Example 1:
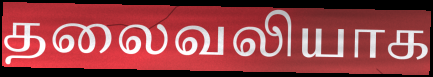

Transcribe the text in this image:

தலைவலியாக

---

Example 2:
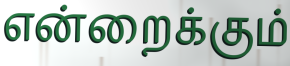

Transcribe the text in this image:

என்றைக்கும்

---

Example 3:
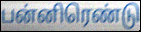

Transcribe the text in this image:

பன்னிரெண்டு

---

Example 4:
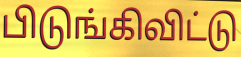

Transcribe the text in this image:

பிடுங்கிவிட்டு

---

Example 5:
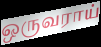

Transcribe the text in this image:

ஒருவராய்